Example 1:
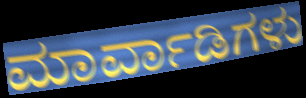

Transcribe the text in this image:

ಮಾರ್ವಾಡಿಗಳು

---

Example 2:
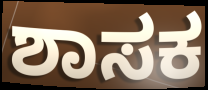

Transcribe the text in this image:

ಶಾಸಕ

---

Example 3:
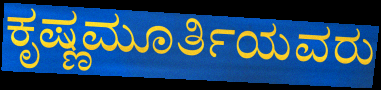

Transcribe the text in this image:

ಕೃಷ್ಣಮೂರ್ತಿಯವರು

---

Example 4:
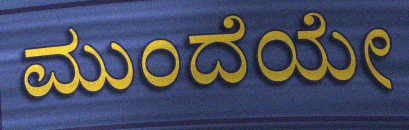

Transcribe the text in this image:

ಮುಂದೆಯೇ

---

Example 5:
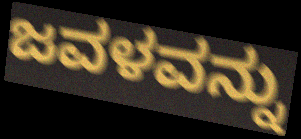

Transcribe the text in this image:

ಜವಳವನ್ನು